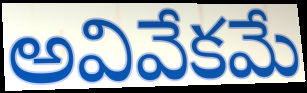
అవివేకమే